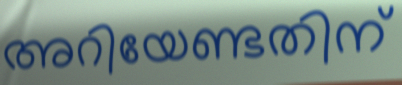
അറിയേണ്ടതിന്